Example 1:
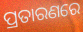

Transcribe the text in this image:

ପ୍ରତାରଣରେ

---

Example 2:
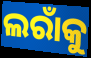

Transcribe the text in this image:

ଲରାଁକୁ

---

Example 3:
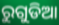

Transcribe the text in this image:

ରୁଗୁଡିଆ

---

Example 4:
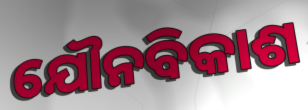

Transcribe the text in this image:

ଯୌନବିକାଶ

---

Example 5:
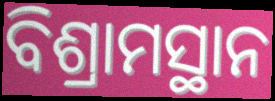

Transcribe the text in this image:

ବିଶ୍ରାମସ୍ଥାନ